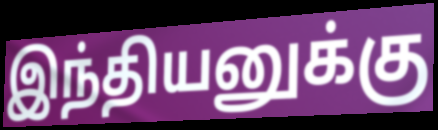
இந்தியனுக்கு